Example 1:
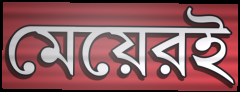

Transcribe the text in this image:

মেয়েরই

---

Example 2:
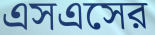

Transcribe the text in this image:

এসএসের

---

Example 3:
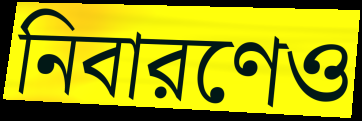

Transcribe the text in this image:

নিবারণেও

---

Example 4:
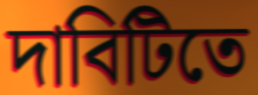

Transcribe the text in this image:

দাবিটিতে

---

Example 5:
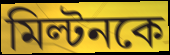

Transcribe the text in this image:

মিল্টনকে